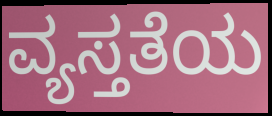
ವ್ಯಸ್ತತೆಯ